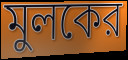
মুলকের